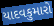
યાદવકુમારો